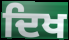
ਦਿਖ